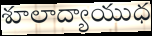
శూలాద్యాయుధ